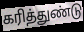
கரித்துண்டு